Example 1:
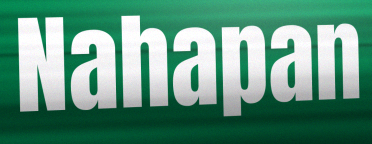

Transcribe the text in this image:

Nahapan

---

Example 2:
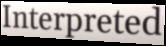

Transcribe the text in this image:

Interpreted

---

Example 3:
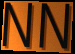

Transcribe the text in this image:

NN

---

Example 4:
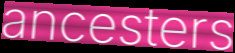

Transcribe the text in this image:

ancesters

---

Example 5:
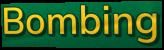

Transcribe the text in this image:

Bombing